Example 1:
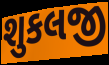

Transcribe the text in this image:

શુકલજી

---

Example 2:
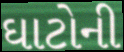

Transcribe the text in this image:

ઘાટોની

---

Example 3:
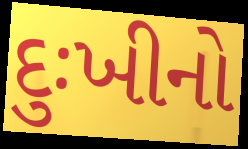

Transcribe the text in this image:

દુઃખીનો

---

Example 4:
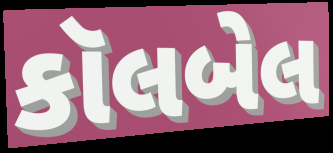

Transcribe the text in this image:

કૉલબેલ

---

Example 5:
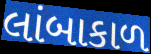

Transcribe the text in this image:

લાંબાકાળ